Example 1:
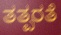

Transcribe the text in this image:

ತತ್ಪರತೆ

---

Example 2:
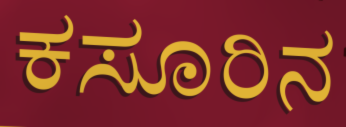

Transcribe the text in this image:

ಕಸೂರಿನ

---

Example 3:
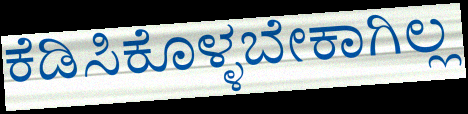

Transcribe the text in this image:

ಕೆಡಿಸಿಕೊಳ್ಳಬೇಕಾಗಿಲ್ಲ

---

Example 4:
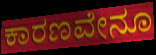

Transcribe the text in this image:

ಕಾರಣವೇನೂ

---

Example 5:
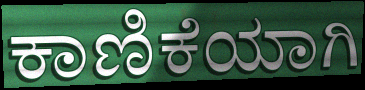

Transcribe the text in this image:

ಕಾಣಿಕೆಯಾಗಿ